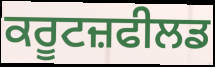
ਕਰੂਟਜ਼ਫੀਲਡ